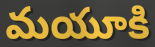
మయూకి